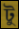
টু